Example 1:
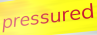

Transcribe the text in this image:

pressured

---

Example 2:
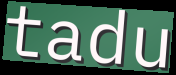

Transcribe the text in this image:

tadu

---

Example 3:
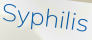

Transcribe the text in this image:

Syphilis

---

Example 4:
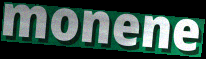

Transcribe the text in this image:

monene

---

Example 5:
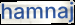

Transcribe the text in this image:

hamnaj